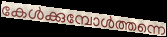
കേൾക്കുമ്പോൾത്തന്നെ